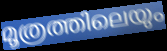
മൂത്രത്തിലെയും